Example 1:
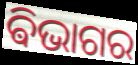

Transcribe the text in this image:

ଵିଭାଗର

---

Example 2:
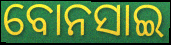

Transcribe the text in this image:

ବୋନସାଇ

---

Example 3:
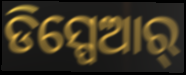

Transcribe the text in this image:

ଡିସ୍ପେଆର୍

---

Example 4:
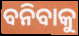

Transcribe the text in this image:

ବନିବାକୁ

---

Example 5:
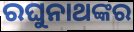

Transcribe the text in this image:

ରଘୁନାଥଙ୍କର